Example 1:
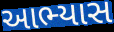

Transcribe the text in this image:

આભ્યાસ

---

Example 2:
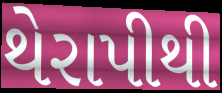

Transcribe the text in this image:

થેરાપીથી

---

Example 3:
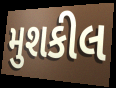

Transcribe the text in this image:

મુશકીલ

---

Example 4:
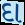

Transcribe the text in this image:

દા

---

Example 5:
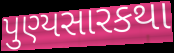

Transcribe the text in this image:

પુણ્યસારકથા